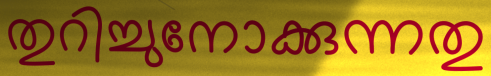
തുറിച്ചുനോക്കുന്നതു